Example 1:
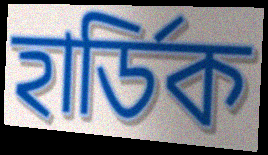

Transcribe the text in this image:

হাৰ্ডিক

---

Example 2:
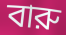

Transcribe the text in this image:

বাৰু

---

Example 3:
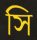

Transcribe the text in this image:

সি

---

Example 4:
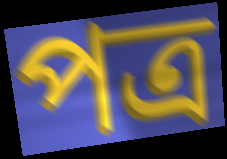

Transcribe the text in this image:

পত্ৰ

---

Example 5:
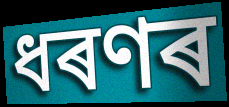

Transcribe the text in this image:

ধৰণৰ